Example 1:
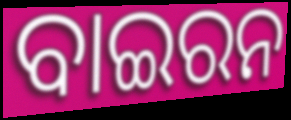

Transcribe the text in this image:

ବାଇରନ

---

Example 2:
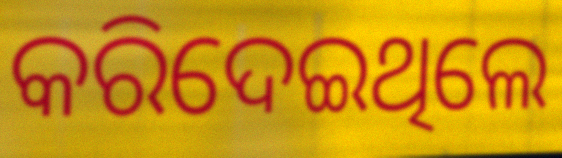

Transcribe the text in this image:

କରିଦେଇଥିଲେ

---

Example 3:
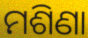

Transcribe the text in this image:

ମଶିଣା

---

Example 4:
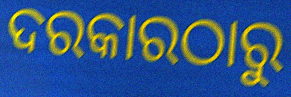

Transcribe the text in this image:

ଦରକାରଠାରୁ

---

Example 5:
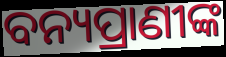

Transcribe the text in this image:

ବନ୍ୟପ୍ରାଣୀଙ୍କ